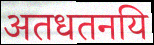
अतधतनयि